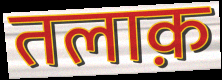
तलाक़